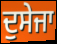
ਦੁਸੇਜਾ